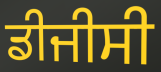
ਡੀਜੀਸੀ